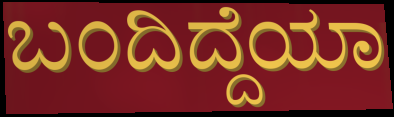
ಬಂದಿದ್ದೆಯಾ